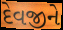
દેવજીને